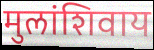
मुलांशिवाय